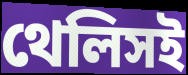
থেলিসই